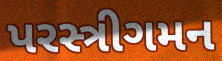
પરસ્ત્રીગમન